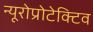
न्यूरोप्रोटेक्टिव